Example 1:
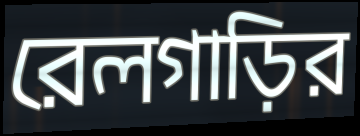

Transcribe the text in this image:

রেলগাড়ির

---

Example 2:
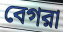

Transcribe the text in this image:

বেগরা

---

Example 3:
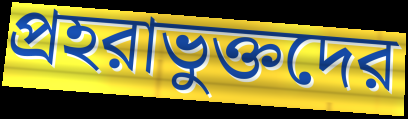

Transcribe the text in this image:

প্রহরাভুক্তদের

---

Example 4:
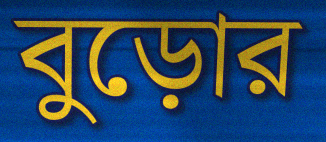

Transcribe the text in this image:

বুড়োর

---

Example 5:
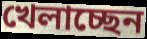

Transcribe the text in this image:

খেলাচ্ছেন